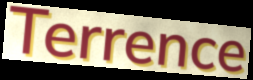
Terrence